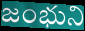
జంభుని